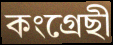
কংগ্ৰেছী